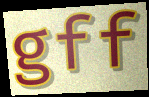
gff